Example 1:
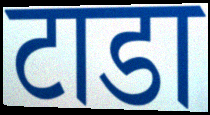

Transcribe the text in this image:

टाडा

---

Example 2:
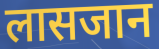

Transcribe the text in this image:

लासजान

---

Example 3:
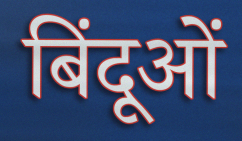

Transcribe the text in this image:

बिंदूओं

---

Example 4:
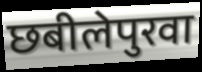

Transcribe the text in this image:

छबीलेपुरवा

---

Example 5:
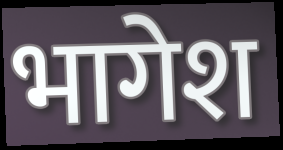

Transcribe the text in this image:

भागेश